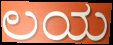
ಲಯ